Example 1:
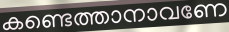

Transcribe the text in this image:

കണ്ടെത്താനാവണേ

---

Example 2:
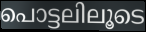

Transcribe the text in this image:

പൊട്ടലിലൂടെ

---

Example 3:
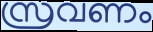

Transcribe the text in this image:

സ്രവണം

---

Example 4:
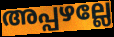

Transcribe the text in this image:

അപ്പഴല്ലേ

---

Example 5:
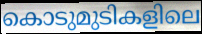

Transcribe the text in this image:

കൊടുമുടികളിലെ